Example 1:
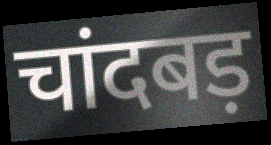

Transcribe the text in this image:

चांदबड़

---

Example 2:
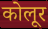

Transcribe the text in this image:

कोलूर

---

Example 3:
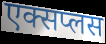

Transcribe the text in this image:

एक्सप्लस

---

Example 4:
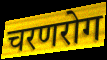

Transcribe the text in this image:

चरणरोग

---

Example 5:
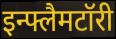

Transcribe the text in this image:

इन्फ्लैमटॉरी